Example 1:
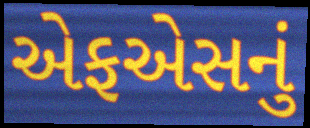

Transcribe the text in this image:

એફએસનું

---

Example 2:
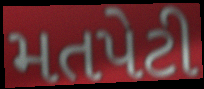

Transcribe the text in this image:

મતપેટી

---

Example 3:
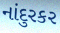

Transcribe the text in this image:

નાંદુરકર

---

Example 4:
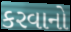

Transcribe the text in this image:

કરવાનો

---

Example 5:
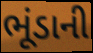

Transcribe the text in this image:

ભૂંડાની